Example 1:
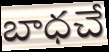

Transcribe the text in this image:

బాధచే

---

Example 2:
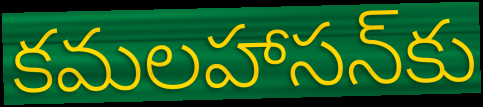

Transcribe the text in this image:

కమలహాసన్‌కు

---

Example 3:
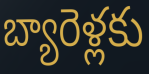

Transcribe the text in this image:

బ్యారెళ్లకు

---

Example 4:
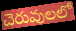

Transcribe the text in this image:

చెరువులలో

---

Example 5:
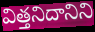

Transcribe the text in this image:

విత్తనిదానిని